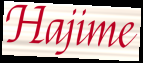
Hajime